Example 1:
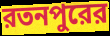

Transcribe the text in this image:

রতনপুরের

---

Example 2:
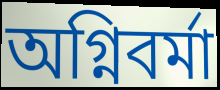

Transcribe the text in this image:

অগ্নিবর্মা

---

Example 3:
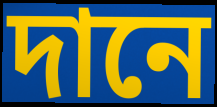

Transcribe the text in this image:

দানে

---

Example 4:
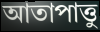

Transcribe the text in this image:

আতাপাত্তু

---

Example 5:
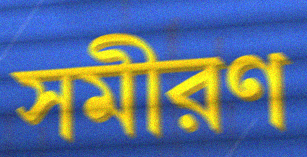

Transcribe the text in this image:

সমীরণ